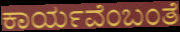
ಕಾರ್ಯವೆಂಬಂತೆ